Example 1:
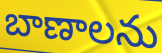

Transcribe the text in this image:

బాణాలను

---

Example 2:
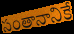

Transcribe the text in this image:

సంతానానికే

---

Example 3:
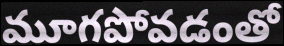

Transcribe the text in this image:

మూగపోవడంతో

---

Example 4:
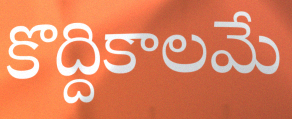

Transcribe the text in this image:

కొద్దికాలమే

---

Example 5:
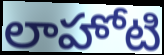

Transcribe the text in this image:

లాహోటి